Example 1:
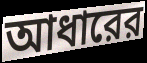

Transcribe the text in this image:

আধারের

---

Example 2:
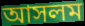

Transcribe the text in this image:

আসলম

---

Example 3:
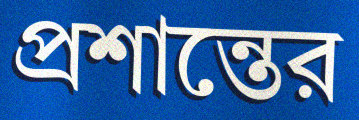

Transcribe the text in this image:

প্রশান্তের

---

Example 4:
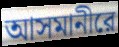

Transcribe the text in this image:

আসমানীরে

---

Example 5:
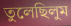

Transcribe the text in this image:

তুলেছিলুম